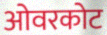
ओवरकोट